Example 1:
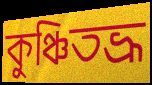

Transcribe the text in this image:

কুঞ্চিতভ্রূ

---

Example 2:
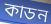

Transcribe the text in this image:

কাডন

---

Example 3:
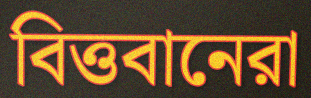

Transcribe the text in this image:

বিত্তবানেরা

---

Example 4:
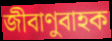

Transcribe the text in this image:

জীবাণুবাহক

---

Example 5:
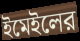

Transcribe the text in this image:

ইমেইলের